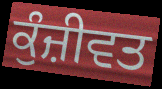
ਕੁੰਜ਼ੀਵਤ